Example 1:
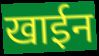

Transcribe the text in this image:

खाईन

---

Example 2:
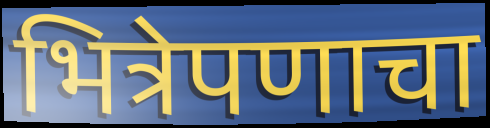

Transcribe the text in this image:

भित्रेपणाचा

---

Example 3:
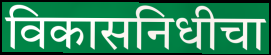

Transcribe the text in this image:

विकासनिधीचा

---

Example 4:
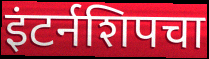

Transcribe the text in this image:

इंटर्नशिपचा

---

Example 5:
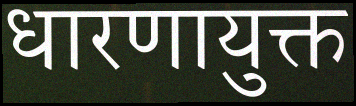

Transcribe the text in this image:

धारणायुक्त